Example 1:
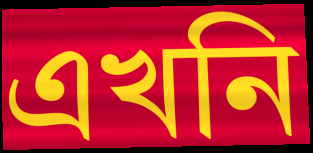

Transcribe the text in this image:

এখনি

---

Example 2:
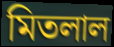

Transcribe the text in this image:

মিতলাল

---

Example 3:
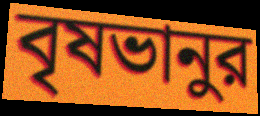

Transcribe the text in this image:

বৃষভানুর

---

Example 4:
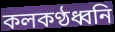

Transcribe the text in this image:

কলকণ্ঠধ্বনি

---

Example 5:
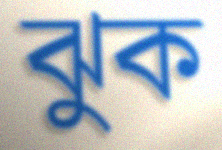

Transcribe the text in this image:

ঝুক